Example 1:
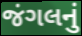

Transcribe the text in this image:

જંગલનું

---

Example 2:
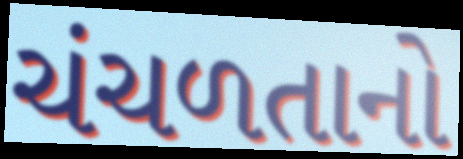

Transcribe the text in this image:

ચંચળતાનો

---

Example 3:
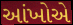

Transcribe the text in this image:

આંખોએ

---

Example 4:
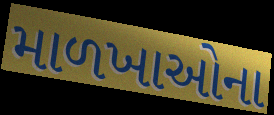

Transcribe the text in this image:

માળખાઓના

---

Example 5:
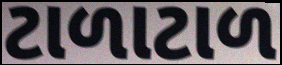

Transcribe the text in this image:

ટાળાટાળ